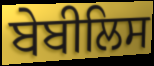
ਬੇਬੀਲਿਸ